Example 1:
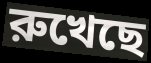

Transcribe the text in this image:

রুখেছে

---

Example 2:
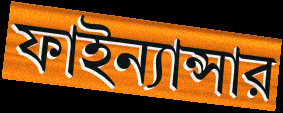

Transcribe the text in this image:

ফাইন্যান্সার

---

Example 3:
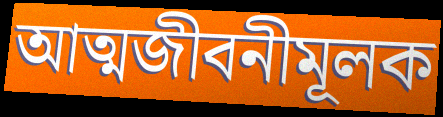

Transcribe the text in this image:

আত্মজীবনীমূলক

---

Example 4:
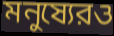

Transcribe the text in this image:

মনুষ্যেরও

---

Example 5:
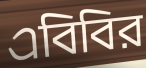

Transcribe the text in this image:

এবিবির